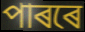
পাৰৰে